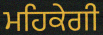
ਮਹਿਕੇਗੀ